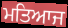
ਮਤਿਆਜ